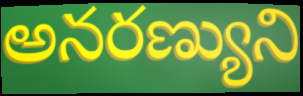
అనరణ్యుని